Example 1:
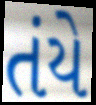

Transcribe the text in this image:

તંયે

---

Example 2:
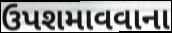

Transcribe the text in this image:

ઉપશમાવવાના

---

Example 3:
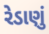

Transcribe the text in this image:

રેડાણું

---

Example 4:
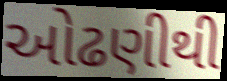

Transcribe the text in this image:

ઓઢણીથી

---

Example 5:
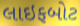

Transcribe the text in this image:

લાઇફબોટ